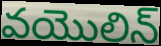
వయొలిన్